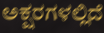
ಅಕ್ಷರಗಳಲ್ಲಿದೆ